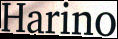
Harino